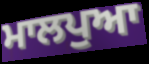
ਮਾਲਪੁਆ